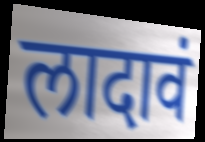
लादावं